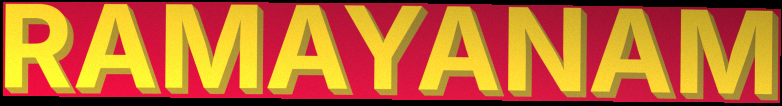
RAMAYANAM